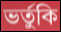
ভর্তুকি